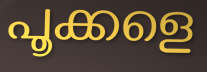
പൂക്കളെ